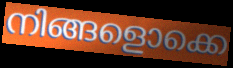
നിങ്ങളൊക്കെ